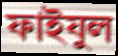
ফাইযুল